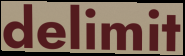
delimit